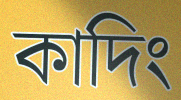
কাদিং